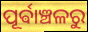
ପୂର୍ଵାଞ୍ଚଳରୁ